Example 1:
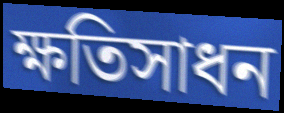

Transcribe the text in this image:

ক্ষতিসাধন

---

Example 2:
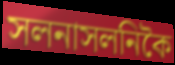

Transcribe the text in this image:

সলনাসলনিকৈ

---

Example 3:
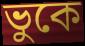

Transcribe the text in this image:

ভুকে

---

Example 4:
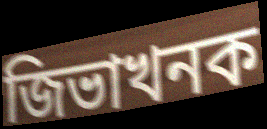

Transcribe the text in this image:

জিভাখনক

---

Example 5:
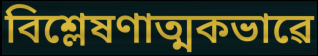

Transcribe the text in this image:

বিশ্লেষণাত্মকভাৱে